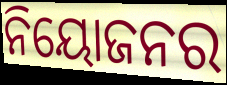
ନିୟୋଜନର